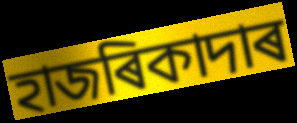
হাজৰিকাদাৰ